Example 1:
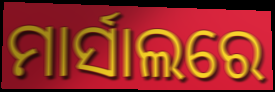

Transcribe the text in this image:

ମାର୍ସାଲରେ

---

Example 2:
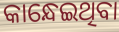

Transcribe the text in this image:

କାନ୍ଧେଇଥିବା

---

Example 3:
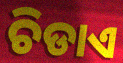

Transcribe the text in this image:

ଚିଡାଏ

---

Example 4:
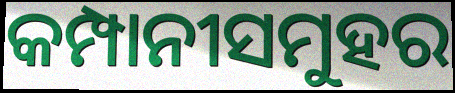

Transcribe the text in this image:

କମ୍ପାନୀସମୁହର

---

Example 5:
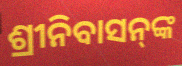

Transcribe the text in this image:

ଶ୍ରୀନିବାସନ୍‌ଙ୍କ